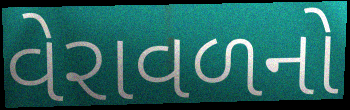
વેરાવળનો